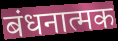
बंधनात्मक